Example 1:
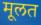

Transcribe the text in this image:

मूलत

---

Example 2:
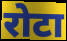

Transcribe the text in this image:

रोटा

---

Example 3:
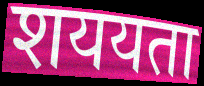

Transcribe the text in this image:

शययता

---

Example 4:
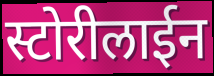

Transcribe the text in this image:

स्टोरीलाईन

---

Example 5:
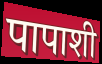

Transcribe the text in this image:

पापाशी